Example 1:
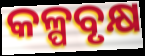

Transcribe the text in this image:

କଳ୍ପବୃକ୍ଷ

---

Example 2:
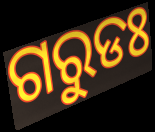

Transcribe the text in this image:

ଗରୁଡଃ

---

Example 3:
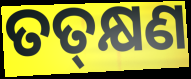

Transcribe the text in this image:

ତତ୍‌କ୍ଷଣ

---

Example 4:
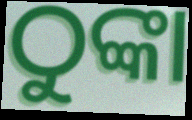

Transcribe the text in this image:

ଠୁଙ୍କା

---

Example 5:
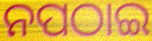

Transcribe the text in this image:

ନପଠାଇ